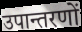
उपान्तरणों